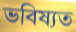
ভবিষ্যত